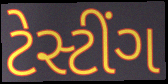
ટેસ્ટીંગ